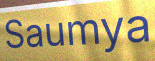
Saumya